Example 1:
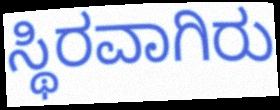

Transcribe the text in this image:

ಸ್ಥಿರವಾಗಿರು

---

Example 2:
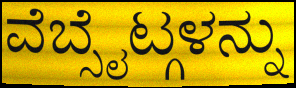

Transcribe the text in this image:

ವೆಬ್ಸೈಟ್ಗಳನ್ನು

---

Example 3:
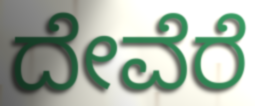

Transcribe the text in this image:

ದೇವೆರೆ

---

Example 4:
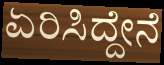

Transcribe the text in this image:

ಏರಿಸಿದ್ದೇನೆ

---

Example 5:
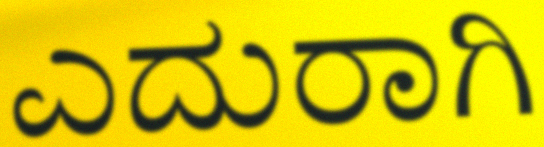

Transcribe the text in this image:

ಎದುರಾಗಿ